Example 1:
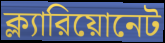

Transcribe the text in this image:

ক্ল্যারিয়োনেট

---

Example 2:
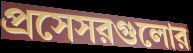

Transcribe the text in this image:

প্রসেসরগুলোর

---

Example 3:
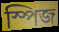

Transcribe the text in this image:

স্পিজ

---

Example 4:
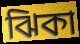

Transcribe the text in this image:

ঝিকা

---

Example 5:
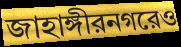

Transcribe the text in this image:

জাহাঙ্গীরনগরেও